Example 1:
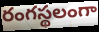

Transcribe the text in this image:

రంగస్థలంగా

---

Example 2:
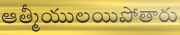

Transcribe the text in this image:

ఆత్మీయులయిపోతారు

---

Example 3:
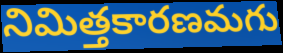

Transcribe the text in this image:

నిమిత్తకారణమగు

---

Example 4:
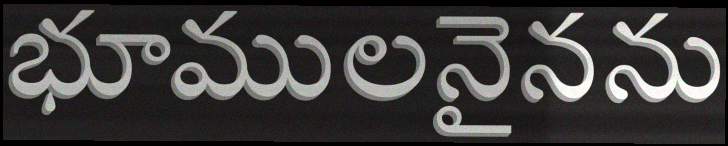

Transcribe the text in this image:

భూములనైనను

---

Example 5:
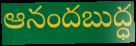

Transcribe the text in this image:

ఆనందబుద్ధ